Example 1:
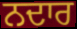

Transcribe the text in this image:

ਨਦਾਰ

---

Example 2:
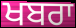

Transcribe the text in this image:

ਖਬਰਾ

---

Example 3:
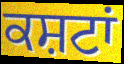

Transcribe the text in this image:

ਕਸ਼ਟਾਂ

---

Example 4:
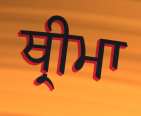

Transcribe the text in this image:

ਥ੍ਰੀਮਾ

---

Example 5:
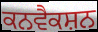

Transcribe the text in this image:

ਕਨਵੈਕਸ਼ਨ